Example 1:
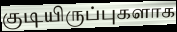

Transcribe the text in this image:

குடியிருப்புகளாக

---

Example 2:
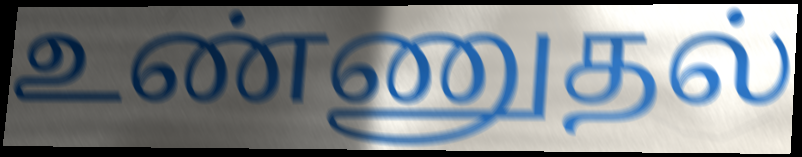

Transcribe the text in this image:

உண்ணுதல்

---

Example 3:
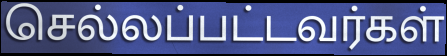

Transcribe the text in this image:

செல்லப்பட்டவர்கள்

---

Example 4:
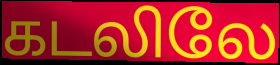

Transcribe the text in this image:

கடலிலே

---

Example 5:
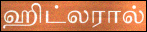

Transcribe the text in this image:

ஹிட்லரால்